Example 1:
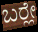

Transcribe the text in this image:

ಬರ್‍ಲೇ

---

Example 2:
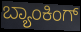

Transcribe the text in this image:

ಬ್ಯಾಂಕಿಂಗ್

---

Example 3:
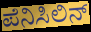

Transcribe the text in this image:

ಪೆನಿಸಿಲಿನ್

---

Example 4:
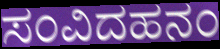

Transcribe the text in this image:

ಸಂವಿದಹನಂ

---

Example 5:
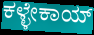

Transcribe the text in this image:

ಕಳ್ಳೇಕಾಯ್